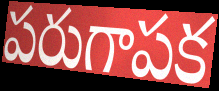
పరుగాపక